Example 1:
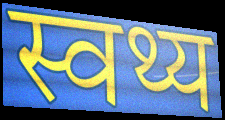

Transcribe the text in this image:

स्वथ्य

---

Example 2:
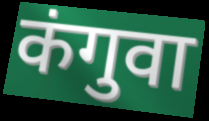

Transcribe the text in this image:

कंगुवा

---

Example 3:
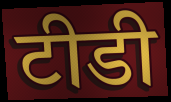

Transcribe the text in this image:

टीडी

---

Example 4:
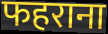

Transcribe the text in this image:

फहराना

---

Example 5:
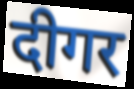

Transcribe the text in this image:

दीगर